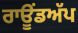
ਰਾਊਂਡਅੱਪ